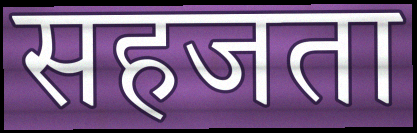
सहजता